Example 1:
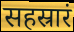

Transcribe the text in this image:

सहस्रारं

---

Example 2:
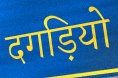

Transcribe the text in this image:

दगड़ियो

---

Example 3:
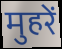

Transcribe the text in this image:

मुहरें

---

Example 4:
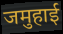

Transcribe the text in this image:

जमुहाई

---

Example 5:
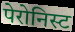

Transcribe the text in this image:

पेरोनिस्ट